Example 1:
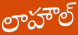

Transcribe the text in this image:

లాహౌల్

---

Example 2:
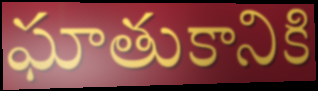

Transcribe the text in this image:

ఘాతుకానికి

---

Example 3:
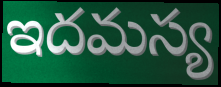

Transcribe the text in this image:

ఇదమస్య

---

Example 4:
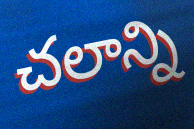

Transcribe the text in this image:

చలాన్ని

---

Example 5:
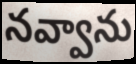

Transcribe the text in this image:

నవ్వాను